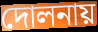
দোলনায়